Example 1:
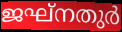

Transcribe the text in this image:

ജഘ്നതുർ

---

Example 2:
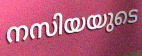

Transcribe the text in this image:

നസിയയുടെ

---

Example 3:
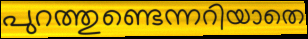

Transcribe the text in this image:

പുറത്തുണ്ടെന്നറിയാതെ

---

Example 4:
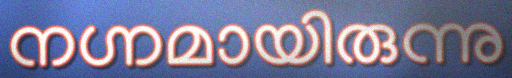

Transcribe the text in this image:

നഗ്നമായിരുന്നു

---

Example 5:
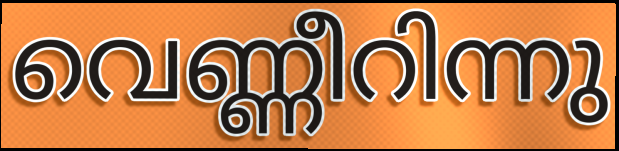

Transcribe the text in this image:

വെണ്ണീറിന്നു